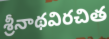
శ్రీనాథవిరచిత